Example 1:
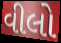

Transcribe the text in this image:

વીલો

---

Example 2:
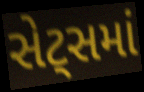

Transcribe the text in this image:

સેટ્સમાં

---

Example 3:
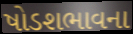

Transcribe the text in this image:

ષોડશભાવના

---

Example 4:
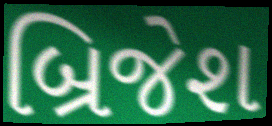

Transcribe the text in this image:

બ્રિજેશ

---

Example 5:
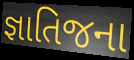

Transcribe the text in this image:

જ્ઞાતિજના